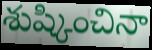
శుష్కించినా